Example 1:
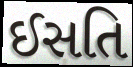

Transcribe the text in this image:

ઈસતિ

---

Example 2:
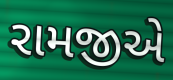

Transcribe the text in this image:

રામજીએ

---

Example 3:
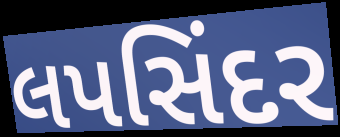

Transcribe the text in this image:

લપસિંદર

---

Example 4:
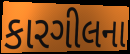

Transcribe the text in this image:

કારગીલના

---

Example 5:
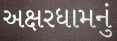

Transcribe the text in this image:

અક્ષરધામનું